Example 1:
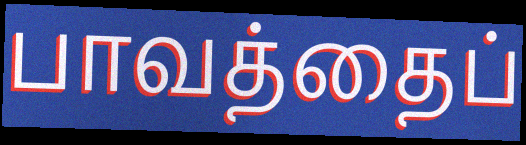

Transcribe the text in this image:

பாவத்தைப்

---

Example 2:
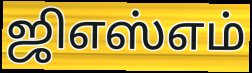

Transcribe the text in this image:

ஜிஎஸ்எம்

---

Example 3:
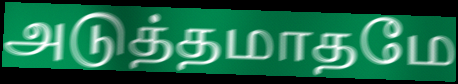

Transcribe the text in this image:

அடுத்தமாதமே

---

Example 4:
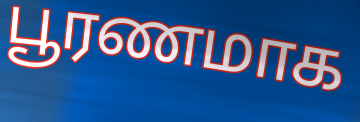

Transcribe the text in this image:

பூரணமாக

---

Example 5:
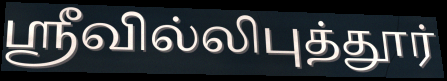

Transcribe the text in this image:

ஸ்ரீவில்லிபுத்தூர்